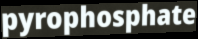
pyrophosphate